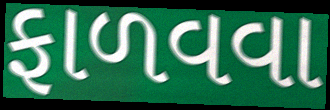
ફાળવવા